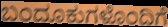
ಬಂದೂಕುಗಳೊಂದಿಗೆ